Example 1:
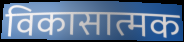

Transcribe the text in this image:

विकासात्मक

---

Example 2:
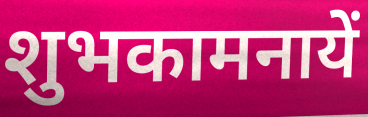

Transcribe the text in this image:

शुभकामनायें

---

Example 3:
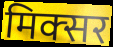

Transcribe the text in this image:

मिक्‍सर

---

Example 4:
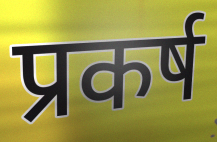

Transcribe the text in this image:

प्रकर्ष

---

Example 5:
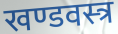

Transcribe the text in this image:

खण्डवस्त्र